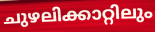
ചുഴലിക്കാറ്റിലും